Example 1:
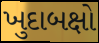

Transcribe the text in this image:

ખુદાબક્ષો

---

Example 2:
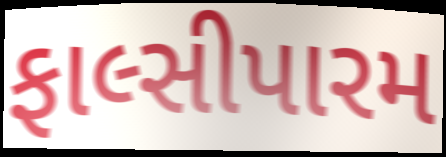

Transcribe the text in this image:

ફાલ્સીપારમ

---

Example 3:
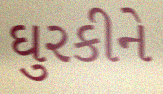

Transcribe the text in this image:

ઘુરકીને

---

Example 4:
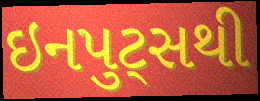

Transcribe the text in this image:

ઇનપુટ્સથી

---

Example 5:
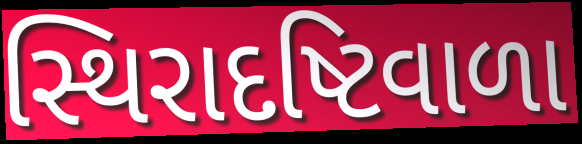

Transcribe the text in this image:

સ્થિરાદષ્ટિવાળા